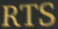
RTS